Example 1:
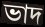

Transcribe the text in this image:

ভাদ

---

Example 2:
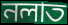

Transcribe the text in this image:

নলাত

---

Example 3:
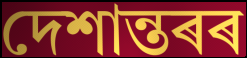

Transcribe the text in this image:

দেশান্তৰৰ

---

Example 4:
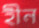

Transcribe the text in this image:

হীন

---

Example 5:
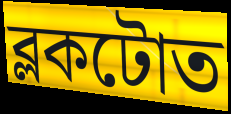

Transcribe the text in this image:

ব্লকটোত